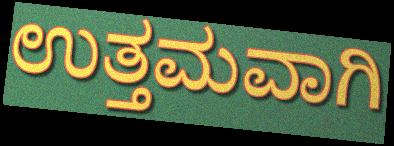
ಉತ್ತಮವಾಗಿ